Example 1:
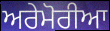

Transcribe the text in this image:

ਅਰੇਮੋਰੀਆ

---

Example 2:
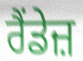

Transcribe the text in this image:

ਰੈਂਡੇਜ਼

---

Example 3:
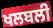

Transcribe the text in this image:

ਖਲਬਲੀ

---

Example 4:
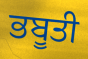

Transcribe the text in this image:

ਭਬੂਤੀ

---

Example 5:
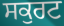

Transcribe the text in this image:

ਸਕੁਰਟ